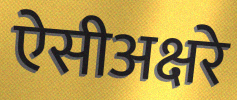
ऐसीअक्षरे